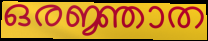
ഒരജ്ഞാത